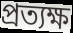
প্ৰত্যক্ষ